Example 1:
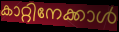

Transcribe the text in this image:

കാറ്റിനേക്കാൾ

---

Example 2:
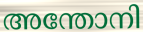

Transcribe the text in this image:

അന്തോനി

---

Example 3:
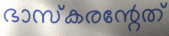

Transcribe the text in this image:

ഭാസ്കരന്റേത്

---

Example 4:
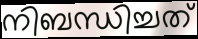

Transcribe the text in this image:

നിബന്ധിച്ചത്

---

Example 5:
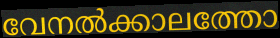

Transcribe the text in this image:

വേനൽക്കാലത്തോ